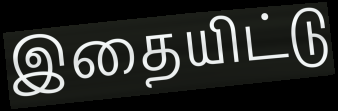
இதையிட்டு